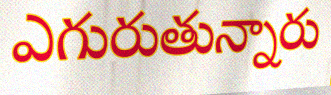
ఎగురుతున్నారు